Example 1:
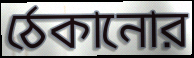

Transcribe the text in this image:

ঠেকানোর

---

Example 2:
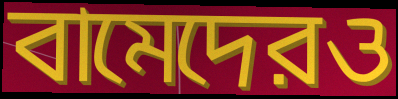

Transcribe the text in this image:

বামেদেরও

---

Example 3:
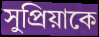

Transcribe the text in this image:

সুপ্রিয়াকে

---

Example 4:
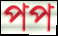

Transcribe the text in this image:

পপ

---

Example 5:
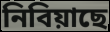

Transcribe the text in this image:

নিবিয়াছে